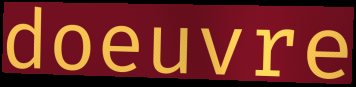
doeuvre